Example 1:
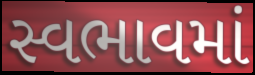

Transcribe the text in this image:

સ્વભાવમાં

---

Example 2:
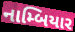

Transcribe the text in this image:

નામ્બિયાર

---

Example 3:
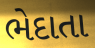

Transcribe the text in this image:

ભેદાતા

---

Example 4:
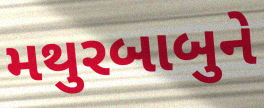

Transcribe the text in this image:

મથુરબાબુને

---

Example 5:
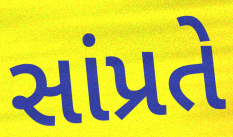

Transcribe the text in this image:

સાંપ્રતે